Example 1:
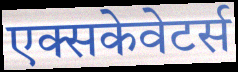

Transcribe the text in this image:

एक्सकेवेटर्स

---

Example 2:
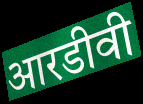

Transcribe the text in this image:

आरडीवी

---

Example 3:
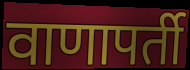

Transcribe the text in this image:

वाणापर्ती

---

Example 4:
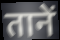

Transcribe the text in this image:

तानें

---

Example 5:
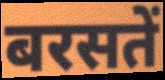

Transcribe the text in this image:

बरसतें